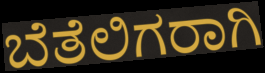
ಬೆತೆಲಿಗರಾಗಿ